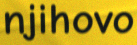
njihovo